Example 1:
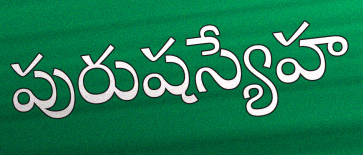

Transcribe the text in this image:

పురుషస్యేహ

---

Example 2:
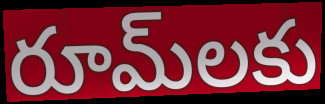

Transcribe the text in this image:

రూమ్‌లకు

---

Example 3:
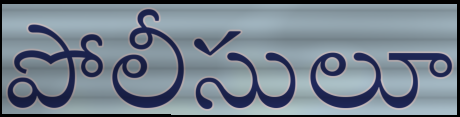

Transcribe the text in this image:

పోలీసులూ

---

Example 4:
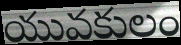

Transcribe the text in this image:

యువకులం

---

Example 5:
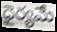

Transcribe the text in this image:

ధైర్యమే